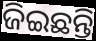
ଜିଇଛନ୍ତି